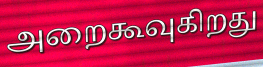
அறைகூவுகிறது